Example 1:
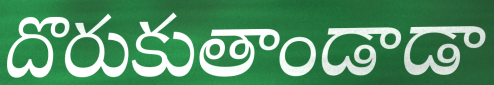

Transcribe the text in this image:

దొరుకుతాండాడా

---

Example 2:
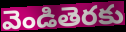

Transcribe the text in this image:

వెండితెరకు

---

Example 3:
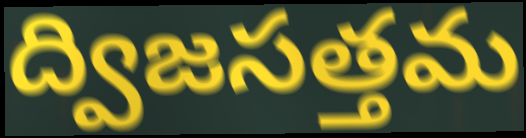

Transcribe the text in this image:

ద్విజసత్తమ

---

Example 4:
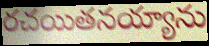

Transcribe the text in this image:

రచయితనయ్యాను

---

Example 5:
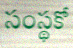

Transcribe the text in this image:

సంస్థకో